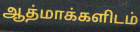
ஆத்மாக்களிடம்